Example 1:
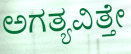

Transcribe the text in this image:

ಅಗತ್ಯವಿತ್ತೇ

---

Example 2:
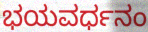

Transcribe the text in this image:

ಭಯವರ್ಧನಂ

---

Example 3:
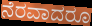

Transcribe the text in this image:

ನೆರವಾದರೂ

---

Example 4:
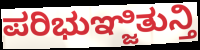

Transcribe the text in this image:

ಪರಿಭುಞ್ಜಿತುನ್ತಿ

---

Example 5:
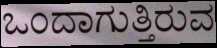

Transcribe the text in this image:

ಒಂದಾಗುತ್ತಿರುವ